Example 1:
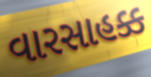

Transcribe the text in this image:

વારસાહક્ક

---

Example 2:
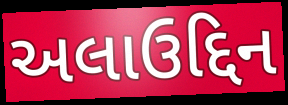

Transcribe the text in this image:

અલાઉદ્દિન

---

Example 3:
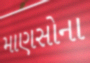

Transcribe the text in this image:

માણસોના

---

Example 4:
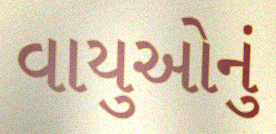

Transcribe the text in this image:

વાયુઓનું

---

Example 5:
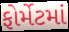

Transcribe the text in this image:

ફોર્મેટમાં